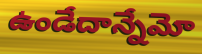
ఉండేదాన్నేమో